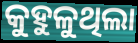
କୁହୁଳୁଥିଲା